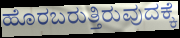
ಹೊರಬರುತ್ತಿರುವುದಕ್ಕೆ